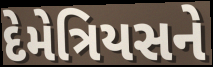
દેમેત્રિયસને